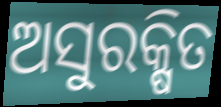
ଅସୁରକ୍ଷିତ